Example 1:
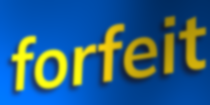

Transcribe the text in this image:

forfeit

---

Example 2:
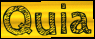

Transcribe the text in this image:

Quia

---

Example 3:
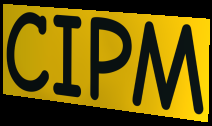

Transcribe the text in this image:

CIPM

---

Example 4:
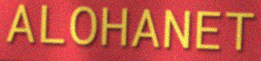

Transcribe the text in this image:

ALOHANET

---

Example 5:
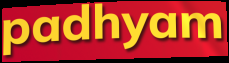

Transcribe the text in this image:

padhyam